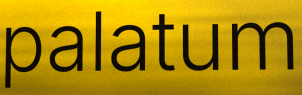
palatum